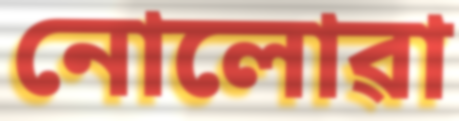
নোলোৱা